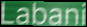
Labani